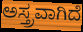
ಅಸ್ತ್ರವಾಗಿದೆ